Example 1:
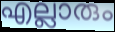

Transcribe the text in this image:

എല്ലാരും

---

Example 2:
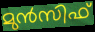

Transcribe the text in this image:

മുൻസിഫ്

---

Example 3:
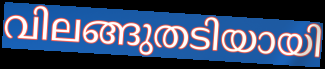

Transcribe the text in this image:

വിലങ്ങുതടിയായി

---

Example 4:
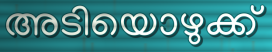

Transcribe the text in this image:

അടിയൊഴുക്ക്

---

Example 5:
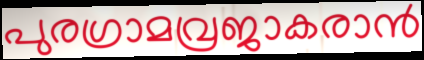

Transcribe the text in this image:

പുരഗ്രാമവ്രജാകരാൻ